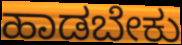
ಹಾಡಬೇಕು